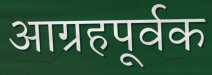
आग्रहपूर्वक